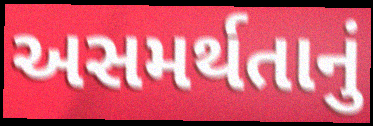
અસમર્થતાનું